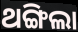
ଥଙ୍ଗିଲା